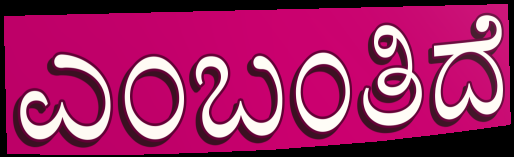
ಎಂಬಂತಿದೆ